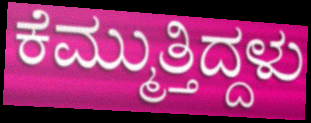
ಕೆಮ್ಮುತ್ತಿದ್ದಳು